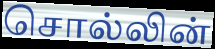
சொல்லின்